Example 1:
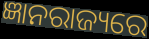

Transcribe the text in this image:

ଜ୍ଞାନରାଜ୍ୟରେ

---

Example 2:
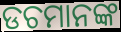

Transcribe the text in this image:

ଡଚମାନଙ୍କ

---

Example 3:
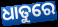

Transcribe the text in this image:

ଧାତୁରେ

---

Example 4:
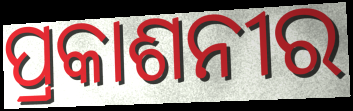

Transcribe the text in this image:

ପ୍ରକାଶନୀର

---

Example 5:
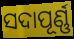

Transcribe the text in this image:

ସଦାପୂର୍ଣ୍ଣ